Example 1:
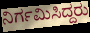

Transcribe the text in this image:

ನಿರ್ಗಮಿಸಿದ್ದರು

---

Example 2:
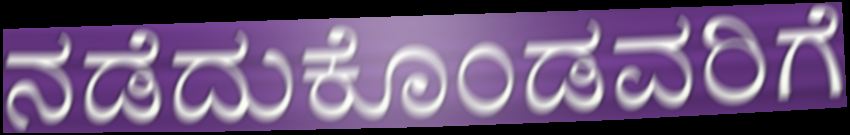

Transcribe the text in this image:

ನಡೆದುಕೊಂಡವರಿಗೆ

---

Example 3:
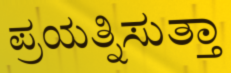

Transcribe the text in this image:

ಪ್ರಯತ್ನಿಸುತ್ತಾ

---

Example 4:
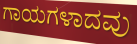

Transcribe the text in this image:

ಗಾಯಗಳಾದವು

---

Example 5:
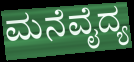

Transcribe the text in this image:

ಮನೆವೈದ್ಯ